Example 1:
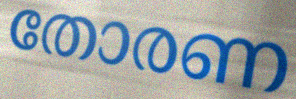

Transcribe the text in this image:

തോരണ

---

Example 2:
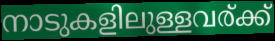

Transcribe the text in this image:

നാടുകളിലുള്ളവര്ക്ക്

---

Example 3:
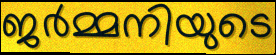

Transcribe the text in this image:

ജർമ്മനിയുടെ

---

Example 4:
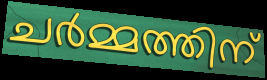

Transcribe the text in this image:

ചർമ്മത്തിന്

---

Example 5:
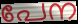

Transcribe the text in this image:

പേന